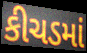
કીચડમાં